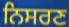
ਨਿਸਰਣ